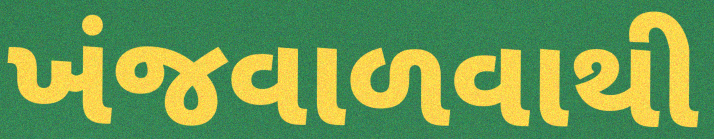
ખંજવાળવાથી